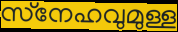
സ്‌നേഹവുമുള്ള